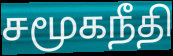
சமூகநீதி